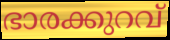
ഭാരക്കുറവ്